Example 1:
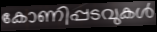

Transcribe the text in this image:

കോണിപ്പടവുകൾ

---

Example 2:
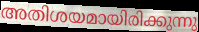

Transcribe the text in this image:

അതിശയമായിരിക്കുന്നു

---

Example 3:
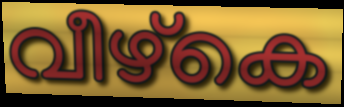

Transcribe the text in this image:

വീഴ്കെ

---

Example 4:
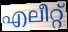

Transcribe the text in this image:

എലീറ്റ്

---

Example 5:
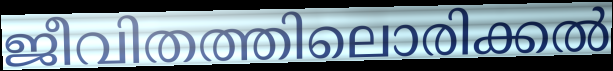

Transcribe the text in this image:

ജീവിതത്തിലൊരിക്കൽ